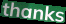
thanks